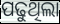
ପଢୁଥିଲା